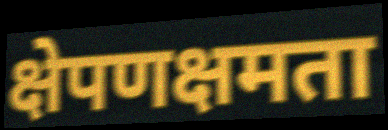
क्षेपणक्षमता